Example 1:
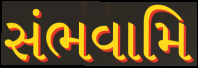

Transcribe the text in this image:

સંભવામિ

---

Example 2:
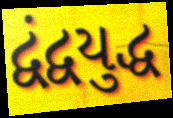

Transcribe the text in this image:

દ્વંદ્વયુદ્ધ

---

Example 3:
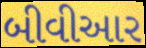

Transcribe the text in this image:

બીવીઆર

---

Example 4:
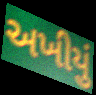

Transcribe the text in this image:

અખીયું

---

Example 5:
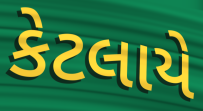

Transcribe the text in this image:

કેટલાયે